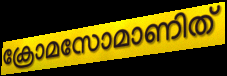
ക്രോമസോമാണിത്